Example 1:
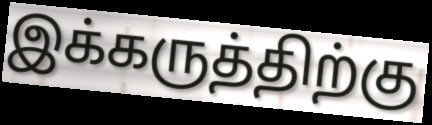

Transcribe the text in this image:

இக்கருத்திற்கு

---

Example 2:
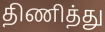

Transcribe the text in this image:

திணித்து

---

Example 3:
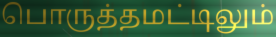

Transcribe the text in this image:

பொருத்தமட்டிலும்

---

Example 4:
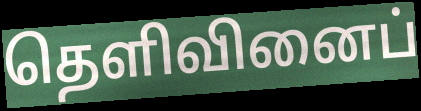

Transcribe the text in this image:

தெளிவினைப்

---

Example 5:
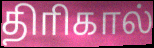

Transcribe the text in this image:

திரிகால்